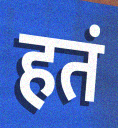
हतं